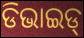
ଡିଭାଇଡ୍